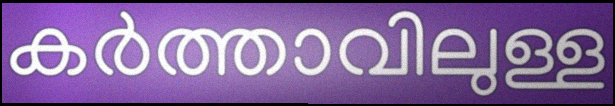
കർത്താവിലുള്ള